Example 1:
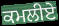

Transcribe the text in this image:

ਕਮਲੀਏ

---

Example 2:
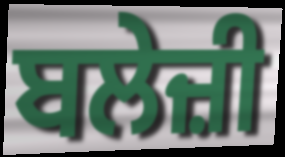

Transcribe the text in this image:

ਬਲੇਜ਼ੀ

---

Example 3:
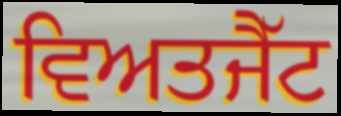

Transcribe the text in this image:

ਵਿਅਤਜੈੱਟ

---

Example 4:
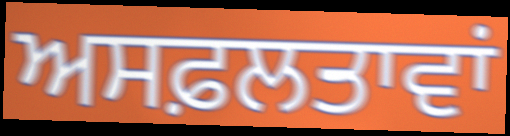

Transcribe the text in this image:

ਅਸਫ਼ਲਤਾਵਾਂ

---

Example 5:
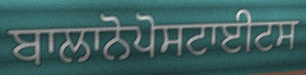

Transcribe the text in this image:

ਬਾਲਾਨੋਪੋਸਟਾਈਟਸ